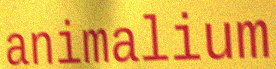
animalium